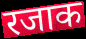
रजाक